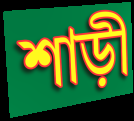
শাড়ী